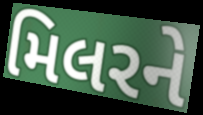
મિલરને